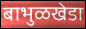
बाभुळखेडा